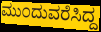
ಮುಂದುವರೆಸಿದ್ದ